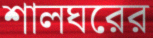
শালঘরের